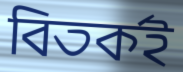
বিতৰ্কই